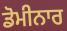
ਡੋਮੀਨਾਰ